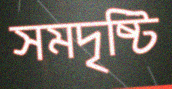
সমদৃষ্টি